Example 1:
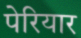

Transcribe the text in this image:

पेरियार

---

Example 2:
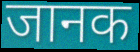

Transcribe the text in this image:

जानक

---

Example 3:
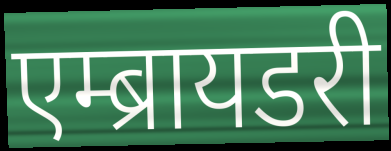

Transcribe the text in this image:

एम्ब्रायडरी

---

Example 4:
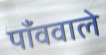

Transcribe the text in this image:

पाँववाले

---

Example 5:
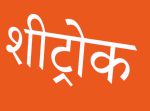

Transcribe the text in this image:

शीट्रोक